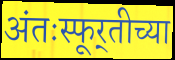
अंतःस्फूर्तीच्या